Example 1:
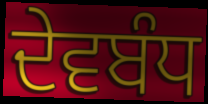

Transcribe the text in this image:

ਦੇਵਬੰਧ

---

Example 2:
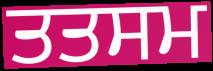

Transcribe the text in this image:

ਤਤਸਮ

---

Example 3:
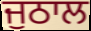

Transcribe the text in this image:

ਜੁਠਾਲ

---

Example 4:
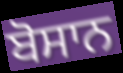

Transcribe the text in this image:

ਬੋਸਾਨ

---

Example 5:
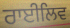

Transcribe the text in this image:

ਰਾਈਲਿਵ